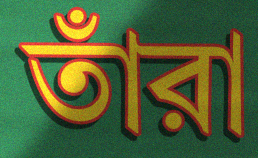
তাঁরা